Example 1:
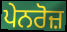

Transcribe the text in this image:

ਪੇਨਰੋਜ਼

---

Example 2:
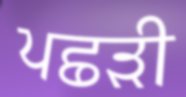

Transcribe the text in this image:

ਪਛੜੀ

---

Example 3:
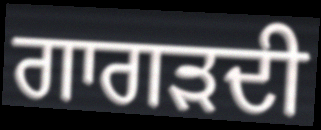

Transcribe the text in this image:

ਗਾਗੜਦੀ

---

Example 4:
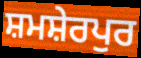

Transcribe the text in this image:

ਸ਼ਮਸ਼ੇਰਪੁਰ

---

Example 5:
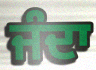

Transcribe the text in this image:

ਜੰਦਾ